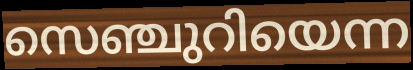
സെഞ്ചുറിയെന്ന